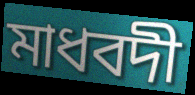
মাধবদী